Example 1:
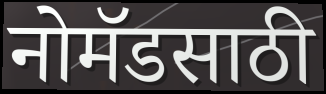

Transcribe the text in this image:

नोमॅडसाठी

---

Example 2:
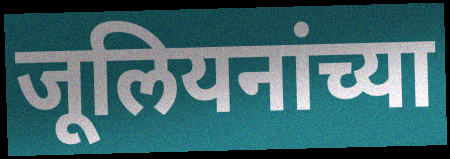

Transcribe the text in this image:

जूलियनांच्या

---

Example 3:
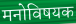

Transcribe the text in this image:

मनोविषयक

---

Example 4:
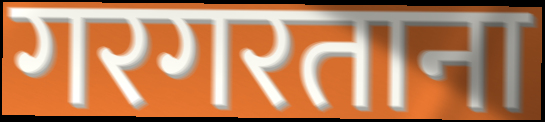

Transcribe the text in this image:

गरगरताना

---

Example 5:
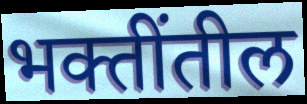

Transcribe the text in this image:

भक्तींतील